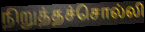
நிறுத்தச்சொல்லி